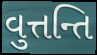
વુત્તન્તિ